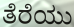
ತೆರೆಯು